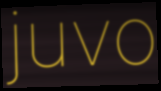
juvo